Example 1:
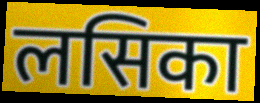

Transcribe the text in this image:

लसिका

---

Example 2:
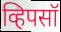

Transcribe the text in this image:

व्हिपसॉ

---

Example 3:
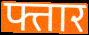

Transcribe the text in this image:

फ्तार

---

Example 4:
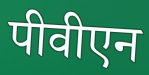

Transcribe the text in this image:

पीवीएन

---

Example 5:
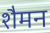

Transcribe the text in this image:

शैमन